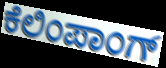
ಕೆಲಿಂಪಾಂಗ್